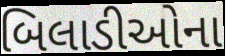
બિલાડીઓના